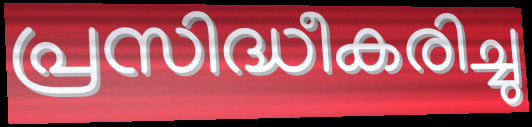
പ്രസിദ്ധീകരിച്ചു